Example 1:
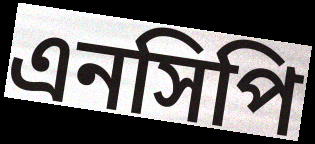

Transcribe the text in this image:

এনসিপি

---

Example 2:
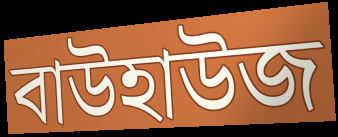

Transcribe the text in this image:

বাউহাউজ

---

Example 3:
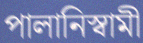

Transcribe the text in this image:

পালানিস্বামী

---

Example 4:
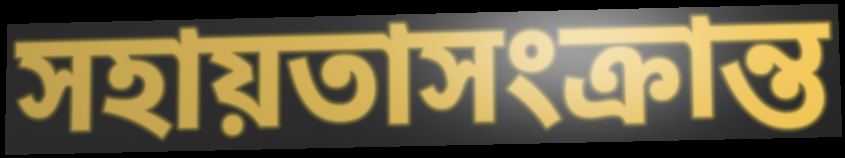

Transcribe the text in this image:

সহায়তাসংক্রান্ত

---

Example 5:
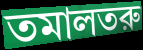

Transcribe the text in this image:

তমালতরু